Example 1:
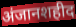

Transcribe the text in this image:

अंजानशहीद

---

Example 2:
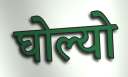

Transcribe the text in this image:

घोल्यो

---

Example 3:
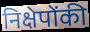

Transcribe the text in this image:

निक्षेपोंकी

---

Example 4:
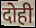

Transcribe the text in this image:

दोही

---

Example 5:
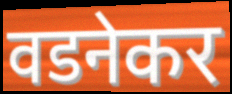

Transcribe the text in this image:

वडनेकर